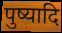
पुष्यादि